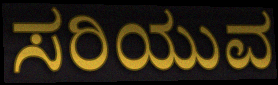
ಸರಿಯುವ